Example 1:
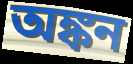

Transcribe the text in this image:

অঙ্কন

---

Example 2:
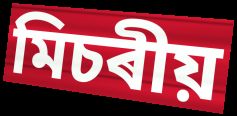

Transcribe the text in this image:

মিচৰীয়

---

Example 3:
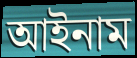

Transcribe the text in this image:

আইনাম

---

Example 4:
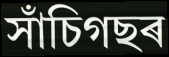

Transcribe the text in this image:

সাঁচিগছৰ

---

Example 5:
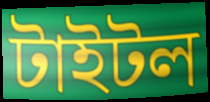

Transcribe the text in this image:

টাইটল